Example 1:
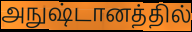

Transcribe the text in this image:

அநுஷ்டானத்தில்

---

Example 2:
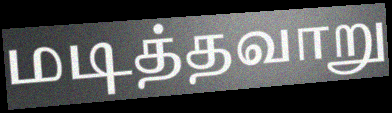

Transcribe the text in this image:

மடித்தவாறு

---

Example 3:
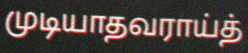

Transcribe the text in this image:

முடியாதவராய்த்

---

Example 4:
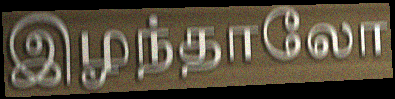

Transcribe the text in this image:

இழந்தாலோ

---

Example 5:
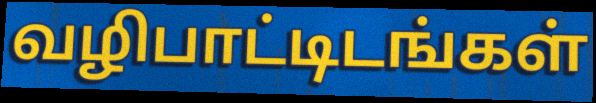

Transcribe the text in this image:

வழிபாட்டிடங்கள்